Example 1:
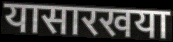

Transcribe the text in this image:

यासारखया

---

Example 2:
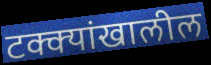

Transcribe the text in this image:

टक्क्यांखालील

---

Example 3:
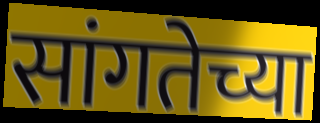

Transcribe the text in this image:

सांगतेच्या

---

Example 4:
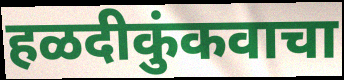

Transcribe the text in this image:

हळदीकुंकवाचा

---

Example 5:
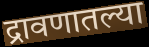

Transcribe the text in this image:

द्रावणातल्या